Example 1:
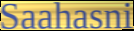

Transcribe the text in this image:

Saahasni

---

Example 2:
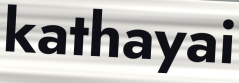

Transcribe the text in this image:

kathayai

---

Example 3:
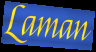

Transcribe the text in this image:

Laman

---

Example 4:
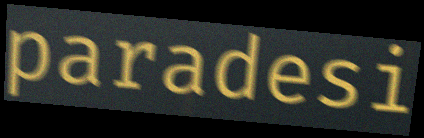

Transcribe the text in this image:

paradesi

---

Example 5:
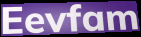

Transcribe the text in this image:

Eevfam